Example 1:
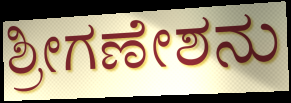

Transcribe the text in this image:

ಶ್ರೀಗಣೇಶನು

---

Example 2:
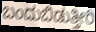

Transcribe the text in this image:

ಬಂದುಬಿಡುತ್ತೀರಿ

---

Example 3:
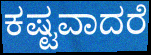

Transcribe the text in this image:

ಕಷ್ಟವಾದರೆ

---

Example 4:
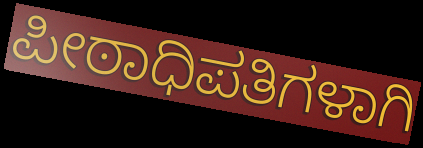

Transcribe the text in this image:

ಪೀಠಾಧಿಪತಿಗಳಾಗಿ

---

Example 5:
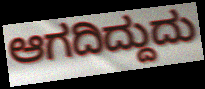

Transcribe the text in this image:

ಆಗದಿದ್ದುದು